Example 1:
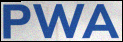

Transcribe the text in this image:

PWA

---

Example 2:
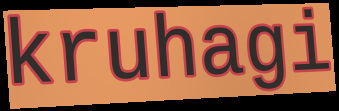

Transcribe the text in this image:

kruhagi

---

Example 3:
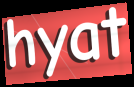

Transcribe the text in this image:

hyat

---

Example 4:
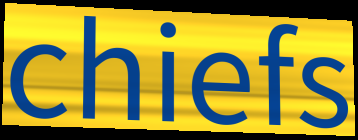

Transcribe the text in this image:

chiefs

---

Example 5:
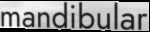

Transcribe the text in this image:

mandibular